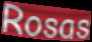
Rosas